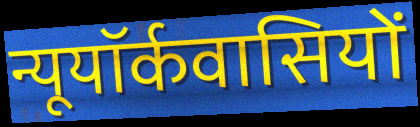
न्यूयॉर्कवासियों